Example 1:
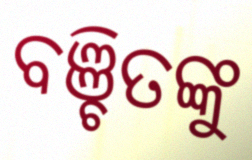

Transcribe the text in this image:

ବଞ୍ଚିତଙ୍କୁ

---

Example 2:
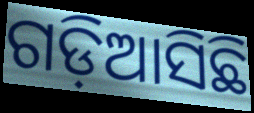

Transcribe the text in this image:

ଗଡ଼ିଆସିଛି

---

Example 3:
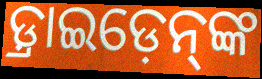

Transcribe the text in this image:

ଡ଼୍ରାଇଡ଼େନ୍‌ଙ୍କ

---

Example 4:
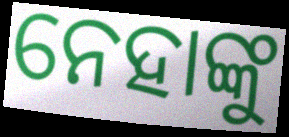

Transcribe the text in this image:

ନେହାଙ୍କୁ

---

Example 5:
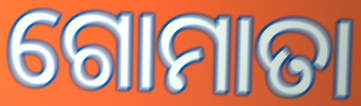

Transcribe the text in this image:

ଗୋମାତା